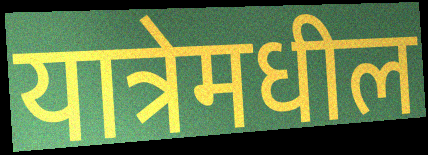
यात्रेमधील